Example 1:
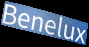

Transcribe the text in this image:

Benelux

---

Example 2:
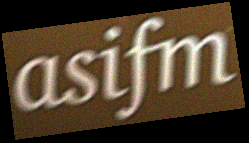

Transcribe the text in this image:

asifm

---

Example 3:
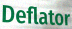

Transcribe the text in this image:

Deflator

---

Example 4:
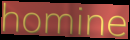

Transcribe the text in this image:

homine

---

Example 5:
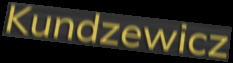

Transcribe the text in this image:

Kundzewicz